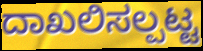
ದಾಖಲಿಸಲ್ಪಟ್ಟ